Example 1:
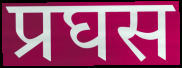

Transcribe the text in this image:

प्रघस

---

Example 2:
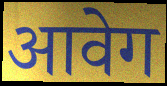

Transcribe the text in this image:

आवेग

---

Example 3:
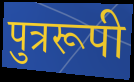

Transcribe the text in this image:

पुत्ररूपी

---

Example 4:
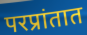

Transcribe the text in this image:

परप्रांतात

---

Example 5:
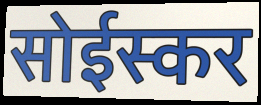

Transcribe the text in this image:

सोईस्कर